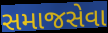
સમાજસેવા